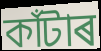
কাঁটাৰ